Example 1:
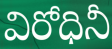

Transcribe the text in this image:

విరోధినీ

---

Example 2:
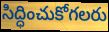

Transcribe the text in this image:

సిద్ధించుకోగలరు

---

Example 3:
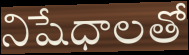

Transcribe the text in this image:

నిషేధాలతో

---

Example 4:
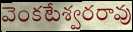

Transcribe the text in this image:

వెంకటేశ్వరరావు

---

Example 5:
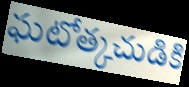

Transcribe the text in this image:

ఘటోత్కచుడికి